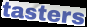
tasters